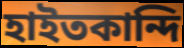
হাইতকান্দি